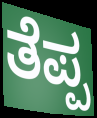
ತೆಪ್ಪ